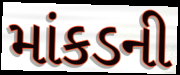
માંકડની